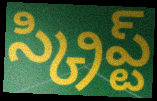
స్క్రిప్ట్